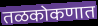
तळकोकणात